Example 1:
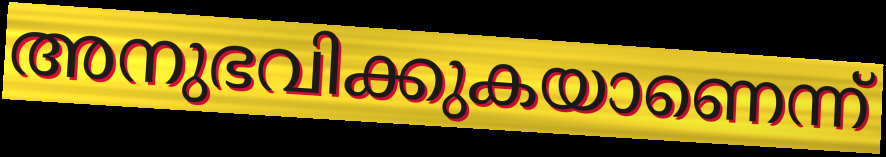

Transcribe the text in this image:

അനുഭവിക്കുകയാണെന്ന്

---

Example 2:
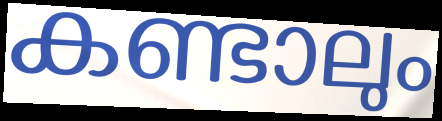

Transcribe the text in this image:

കണ്ടാലും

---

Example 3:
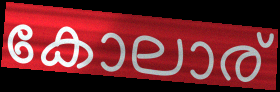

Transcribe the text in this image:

കോലാര്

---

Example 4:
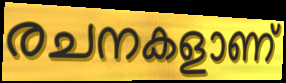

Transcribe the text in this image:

രചനകളാണ്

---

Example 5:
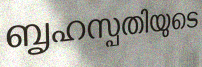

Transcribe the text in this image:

ബൃഹസ്പതിയുടെ